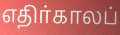
எதிர்காலப்